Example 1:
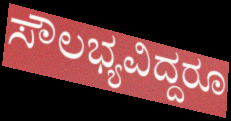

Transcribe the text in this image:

ಸೌಲಭ್ಯವಿದ್ದರೂ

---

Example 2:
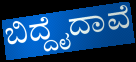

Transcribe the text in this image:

ಬಿದ್ದೈದಾವೆ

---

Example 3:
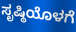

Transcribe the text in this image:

ಸೃಷ್ಠಿಯೊಳಗೆ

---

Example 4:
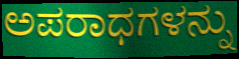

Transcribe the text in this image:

ಅಪರಾಧಗಳನ್ನು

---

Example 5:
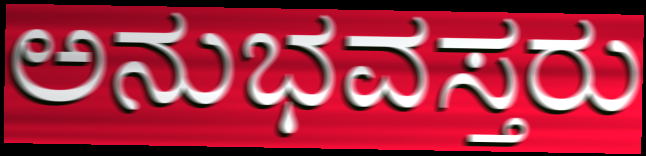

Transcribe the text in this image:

ಅನುಭವಸ್ತರು